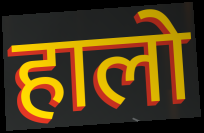
हालो